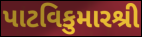
પાટવિકુમારશ્રી